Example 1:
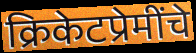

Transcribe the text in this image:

क्रिकेटप्रेमींचे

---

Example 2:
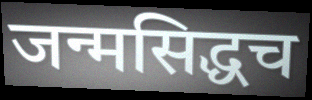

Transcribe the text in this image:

जन्मसिद्धच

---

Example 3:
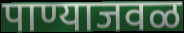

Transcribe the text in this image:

पाण्याजवळ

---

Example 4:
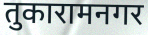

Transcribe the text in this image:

तुकारामनगर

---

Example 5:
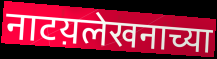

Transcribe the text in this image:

नाटय़लेखनाच्या